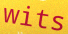
wits